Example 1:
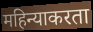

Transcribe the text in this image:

महिन्याकरता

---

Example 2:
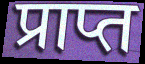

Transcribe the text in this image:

प्राप्त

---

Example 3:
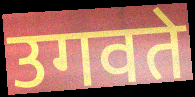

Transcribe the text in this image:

उगवते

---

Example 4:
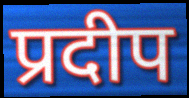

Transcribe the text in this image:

प्रदीप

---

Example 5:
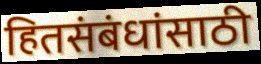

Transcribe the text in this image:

हितसंबंधांसाठी